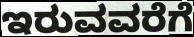
ಇರುವವರೆಗೆ